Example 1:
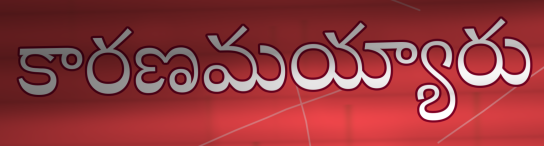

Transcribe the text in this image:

కారణమయ్యారు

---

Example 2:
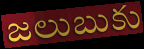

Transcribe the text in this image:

జలుబుకు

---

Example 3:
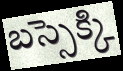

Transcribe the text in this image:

బస్సెక్కి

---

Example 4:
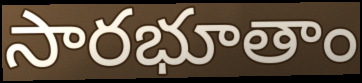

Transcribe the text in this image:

సారభూతాం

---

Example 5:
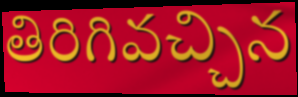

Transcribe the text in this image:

తిరిగివచ్చిన